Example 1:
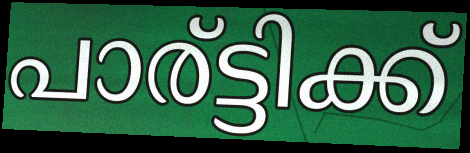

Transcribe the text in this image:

പാര്ട്ടിക്ക്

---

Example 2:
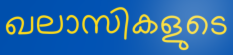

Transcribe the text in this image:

ഖലാസികളുടെ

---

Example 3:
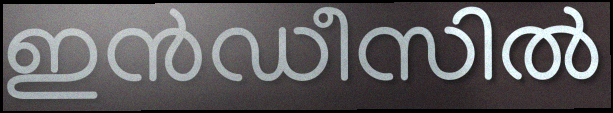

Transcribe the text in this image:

ഇൻഡീസിൽ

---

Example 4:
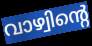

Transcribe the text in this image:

വാഴ്വിന്റെ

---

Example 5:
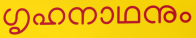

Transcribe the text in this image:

ഗൃഹനാഥനും